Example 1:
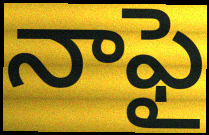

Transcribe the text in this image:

నాఫై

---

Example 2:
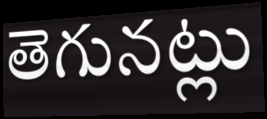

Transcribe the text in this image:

తెగునట్లు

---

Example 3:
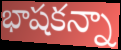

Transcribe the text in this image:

భాషకన్నా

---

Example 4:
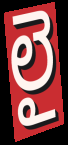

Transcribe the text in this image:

లై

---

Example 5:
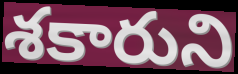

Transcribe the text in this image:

శకారుని